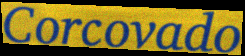
Corcovado